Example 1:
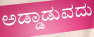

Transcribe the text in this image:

ಅಡ್ಡಾಡುವದು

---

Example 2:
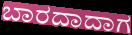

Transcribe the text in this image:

ಬಾರದಾದಾಗ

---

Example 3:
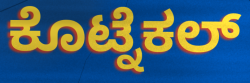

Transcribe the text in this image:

ಕೊಟ್ನೆಕಲ್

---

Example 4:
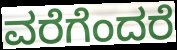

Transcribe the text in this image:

ವರೆಗೆಂದರೆ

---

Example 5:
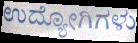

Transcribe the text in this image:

ಉದ್ಯೋಗಿಗಳು